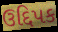
ઉદ્દિપક